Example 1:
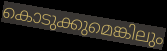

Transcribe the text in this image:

കൊടുക്കുമെങ്കിലും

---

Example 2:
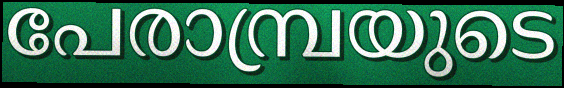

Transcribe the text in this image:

പേരാമ്പ്രയുടെ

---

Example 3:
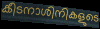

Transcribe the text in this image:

കീടനാശിനികളുടെ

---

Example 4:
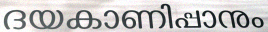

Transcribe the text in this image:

ദയകാണിപ്പാനും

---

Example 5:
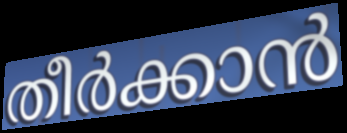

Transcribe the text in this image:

തീർക്കാൻ